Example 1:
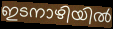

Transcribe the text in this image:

ഇടനാഴിയിൽ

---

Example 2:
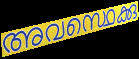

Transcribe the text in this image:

അവസ്ഥെക്കു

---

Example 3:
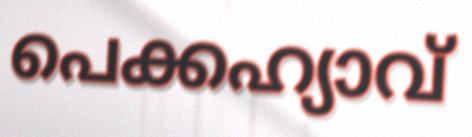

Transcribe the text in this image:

പെക്കഹ്യാവ്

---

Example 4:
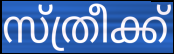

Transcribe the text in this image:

സ്ത്രീക്ക്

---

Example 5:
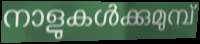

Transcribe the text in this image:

നാളുകൾക്കുമുമ്പ്